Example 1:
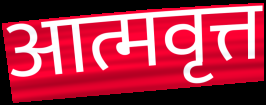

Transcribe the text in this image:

आत्मवृत्त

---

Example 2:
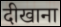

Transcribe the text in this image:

दीखाना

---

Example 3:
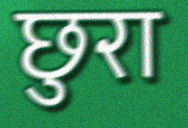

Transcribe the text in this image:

छुरा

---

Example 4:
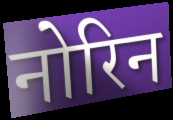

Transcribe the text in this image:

नोरिन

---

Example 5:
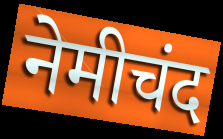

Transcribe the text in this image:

नेमीचंद